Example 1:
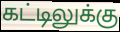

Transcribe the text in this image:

கட்டிலுக்கு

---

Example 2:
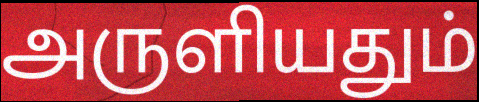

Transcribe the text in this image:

அருளியதும்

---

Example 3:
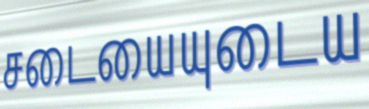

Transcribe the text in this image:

சடையையுடைய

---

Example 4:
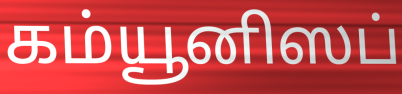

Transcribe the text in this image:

கம்யூனிஸப்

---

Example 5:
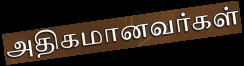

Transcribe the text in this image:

அதிகமானவர்கள்